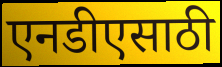
एनडीएसाठी